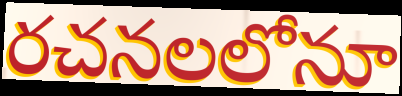
రచనలలోనూ